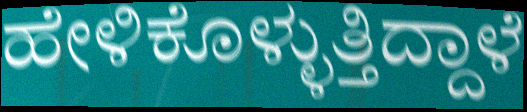
ಹೇಳಿಕೊಳ್ಳುತ್ತಿದ್ದಾಳೆ